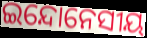
ଇନ୍ଦୋନେସୀୟ